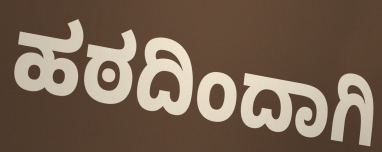
ಹಠದಿಂದಾಗಿ